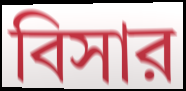
বিসার